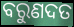
ବରୁଣଦତ